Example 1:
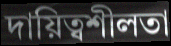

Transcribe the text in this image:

দায়িত্বশীলতা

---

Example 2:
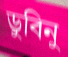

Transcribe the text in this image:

ডুবিনু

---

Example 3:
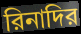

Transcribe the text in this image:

রিনাদির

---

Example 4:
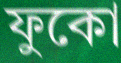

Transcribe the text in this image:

ফুকো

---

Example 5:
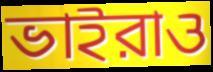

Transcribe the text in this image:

ভাইরাও